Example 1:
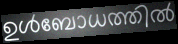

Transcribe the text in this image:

ഉൾബോധത്തിൽ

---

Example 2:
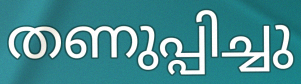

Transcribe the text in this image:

തണുപ്പിച്ചു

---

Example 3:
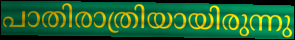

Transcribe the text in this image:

പാതിരാത്രിയായിരുന്നു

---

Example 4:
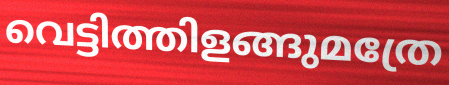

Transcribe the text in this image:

വെട്ടിത്തിളങ്ങുമത്രേ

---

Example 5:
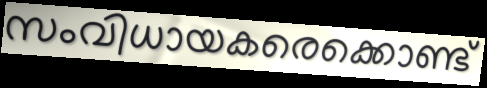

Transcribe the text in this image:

സംവിധായകരെക്കൊണ്ട്